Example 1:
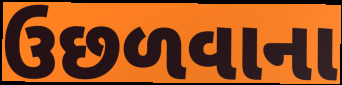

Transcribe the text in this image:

ઉછળવાના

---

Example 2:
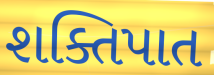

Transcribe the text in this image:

શક્તિપાત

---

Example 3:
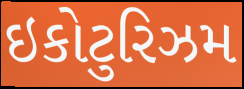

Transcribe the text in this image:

ઇકોટુરિઝમ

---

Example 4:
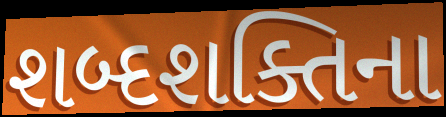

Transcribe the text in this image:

શબ્દશક્તિના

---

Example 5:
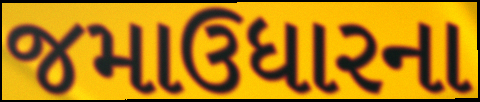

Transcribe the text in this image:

જમાઉધારના